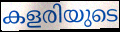
കളരിയുടെ